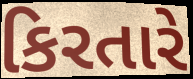
કિરતારે